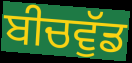
ਬੀਚਵੁੱਡ